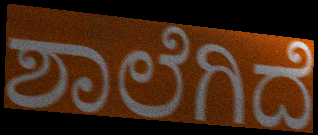
ಶಾಲೆಗಿದೆ